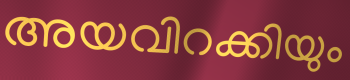
അയവിറക്കിയും